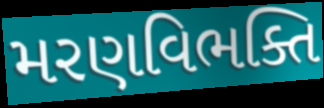
મરણવિભક્તિ